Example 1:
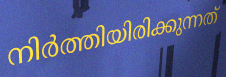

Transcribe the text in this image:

നിർത്തിയിരിക്കുന്നത്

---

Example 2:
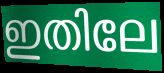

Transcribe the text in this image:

ഇതിലേ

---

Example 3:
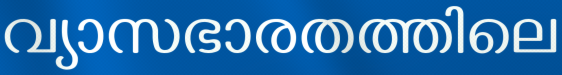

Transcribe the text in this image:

വ്യാസഭാരതത്തിലെ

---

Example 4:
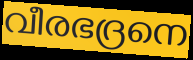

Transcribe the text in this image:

വീരഭദ്രനെ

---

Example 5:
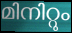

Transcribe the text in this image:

മിനിറ്റും